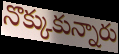
నొక్కుకున్నారు